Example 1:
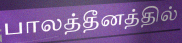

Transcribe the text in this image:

பாலத்தீனத்தில்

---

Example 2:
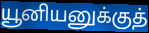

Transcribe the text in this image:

யூனியனுக்குத்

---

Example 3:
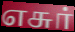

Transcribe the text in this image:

எசுர்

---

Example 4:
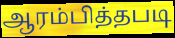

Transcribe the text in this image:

ஆரம்பித்தபடி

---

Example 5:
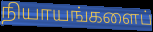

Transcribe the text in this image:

நியாயங்களைப்